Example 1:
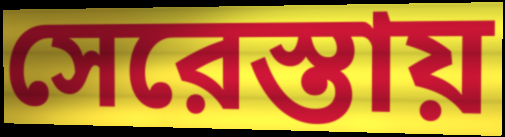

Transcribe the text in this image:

সেরেস্তায়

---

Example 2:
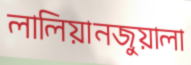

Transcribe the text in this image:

লালিয়ানজুয়ালা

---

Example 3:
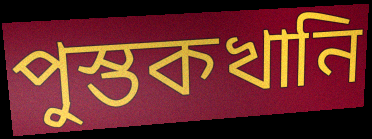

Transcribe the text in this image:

পুস্তকখানি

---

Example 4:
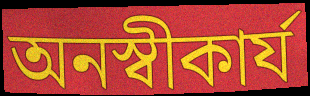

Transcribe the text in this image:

অনস্বীকার্য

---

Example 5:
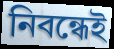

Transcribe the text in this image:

নিবন্ধেই